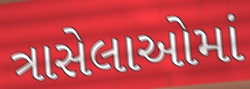
ત્રાસેલાઓમાં